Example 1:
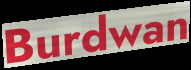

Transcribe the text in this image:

Burdwan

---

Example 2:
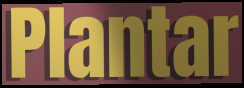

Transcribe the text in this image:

Plantar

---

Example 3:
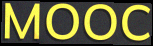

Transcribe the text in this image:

MOOC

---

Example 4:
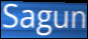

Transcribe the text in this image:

Sagun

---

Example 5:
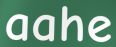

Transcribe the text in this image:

aahe